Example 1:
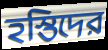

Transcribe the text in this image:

হস্তিদের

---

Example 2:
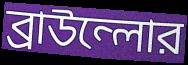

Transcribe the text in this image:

ব্রাউন্লোর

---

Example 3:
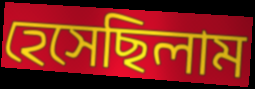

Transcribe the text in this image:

হেসেছিলাম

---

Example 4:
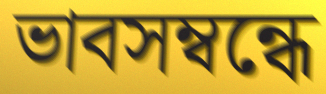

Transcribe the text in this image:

ভাবসম্বন্ধে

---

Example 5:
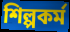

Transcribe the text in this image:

শিল্পকর্ম